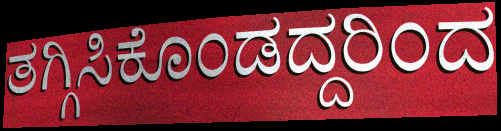
ತಗ್ಗಿಸಿಕೊಂಡದ್ದರಿಂದ